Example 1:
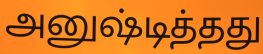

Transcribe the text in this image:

அனுஷ்டித்தது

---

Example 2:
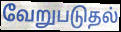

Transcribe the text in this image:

வேறுபடுதல்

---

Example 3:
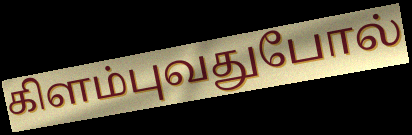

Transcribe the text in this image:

கிளம்புவதுபோல்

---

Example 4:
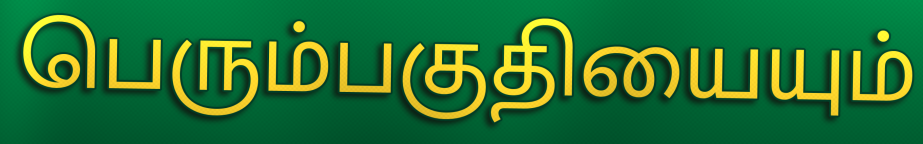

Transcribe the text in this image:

பெரும்பகுதியையும்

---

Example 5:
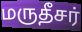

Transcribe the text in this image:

மருதீசர்